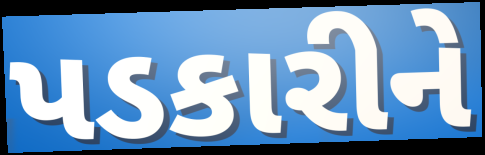
પડકારીને